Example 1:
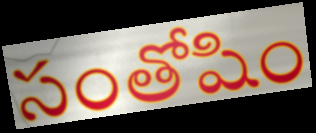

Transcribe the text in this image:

సంతోషిం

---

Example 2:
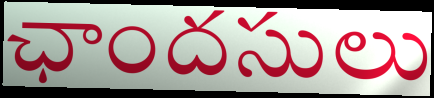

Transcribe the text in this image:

ఛాందసులు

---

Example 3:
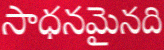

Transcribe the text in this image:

సాధనమైనది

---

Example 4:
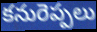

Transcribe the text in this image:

కనురెప్పలు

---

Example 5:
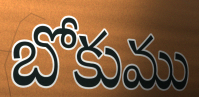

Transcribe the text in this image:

బోకుము